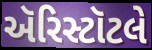
ઍરિસ્ટૉટલે